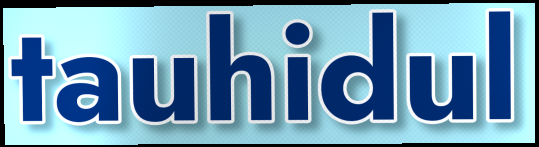
tauhidul